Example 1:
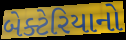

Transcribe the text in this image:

બેક્ટેરિયાનો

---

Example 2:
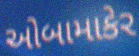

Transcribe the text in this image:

ઓબામાકેર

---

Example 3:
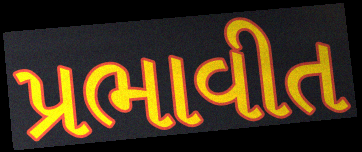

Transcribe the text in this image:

પ્રભાવીત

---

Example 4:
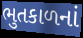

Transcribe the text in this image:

ભુતકાળનાં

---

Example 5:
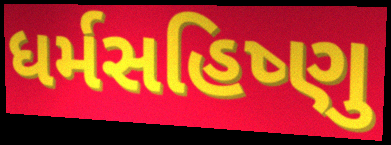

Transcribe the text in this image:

ધર્મસહિષ્ણુ